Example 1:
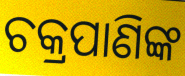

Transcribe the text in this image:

ଚକ୍ରପାଣିଙ୍କ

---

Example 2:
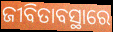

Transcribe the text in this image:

ଜୀବିତାବସ୍ଥାରେ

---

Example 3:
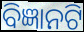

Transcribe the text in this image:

ବିଜ୍ଞାନଟି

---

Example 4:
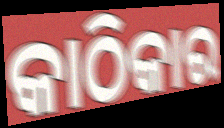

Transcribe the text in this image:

କାଠିକାର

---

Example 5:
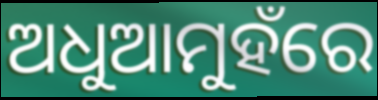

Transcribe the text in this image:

ଅଧୁଆମୁହଁରେ